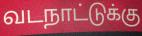
வடநாட்டுக்கு